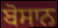
ਬੋਸਾਨ